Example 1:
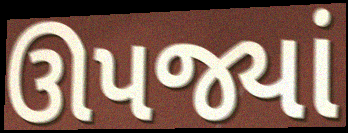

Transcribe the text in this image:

ઊપજ્યાં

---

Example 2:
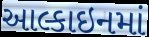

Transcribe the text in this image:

આલ્કાઇનમાં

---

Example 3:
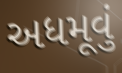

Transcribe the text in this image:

અધમૂવું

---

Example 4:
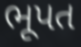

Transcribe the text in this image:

ભૂપત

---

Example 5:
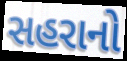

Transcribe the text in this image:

સહરાનો